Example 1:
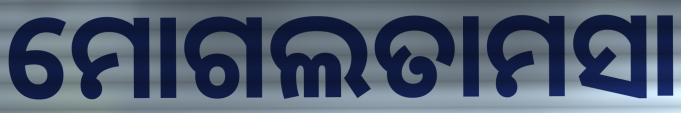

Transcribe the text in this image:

ମୋଗଲତାମସା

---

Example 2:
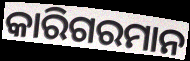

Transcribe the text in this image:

କାରିଗରମାନ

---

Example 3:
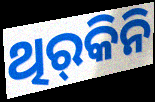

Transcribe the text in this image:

ଥିର୍‍କିନି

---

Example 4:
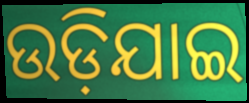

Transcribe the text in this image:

ଉଡ଼ିଯାଇ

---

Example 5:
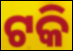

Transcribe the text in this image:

ଟକି